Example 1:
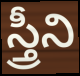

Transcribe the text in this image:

స్త్రీని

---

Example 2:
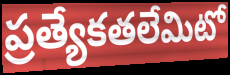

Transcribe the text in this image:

ప్రత్యేకతలేమిటో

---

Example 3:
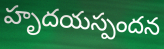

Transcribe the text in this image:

హృదయస్పందన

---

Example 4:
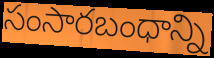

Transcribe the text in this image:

సంసారబంధాన్ని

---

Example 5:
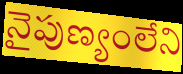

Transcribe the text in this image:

నైపుణ్యంలేని